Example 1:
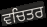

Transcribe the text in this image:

ਵਚਿਤਰ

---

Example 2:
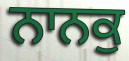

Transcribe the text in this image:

ਨਾਨਕੁ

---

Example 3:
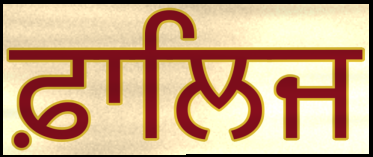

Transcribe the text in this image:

ਫ਼ਾਲਿਜ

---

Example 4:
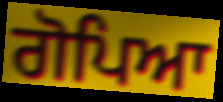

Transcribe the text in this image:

ਗੋਪਿਆ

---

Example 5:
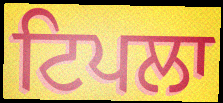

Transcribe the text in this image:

ਟਿਪਲਾ